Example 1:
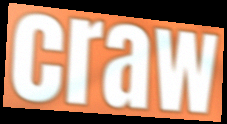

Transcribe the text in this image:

craw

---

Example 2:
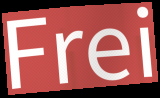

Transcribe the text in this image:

Frei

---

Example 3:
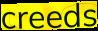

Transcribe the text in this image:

creeds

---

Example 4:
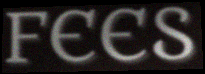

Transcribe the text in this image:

FEES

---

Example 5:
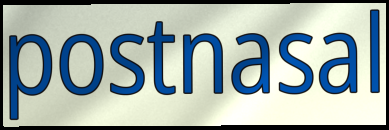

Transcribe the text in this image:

postnasal